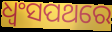
ଧ୍ବଂସପଥରେ